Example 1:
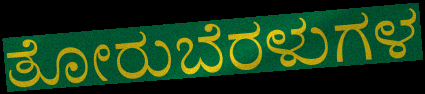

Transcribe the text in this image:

ತೋರುಬೆರಳುಗಳ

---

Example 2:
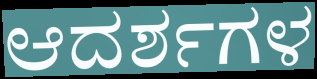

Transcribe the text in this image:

ಆದರ್ಶಗಳ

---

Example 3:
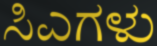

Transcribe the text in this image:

ಸಿಎಗಳು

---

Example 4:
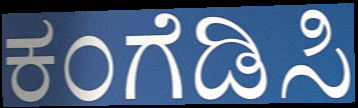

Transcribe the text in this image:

ಕಂಗೆಡಿಸಿ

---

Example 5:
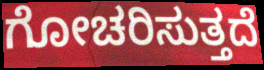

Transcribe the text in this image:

ಗೋಚರಿಸುತ್ತದೆ